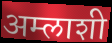
अम्लाशी